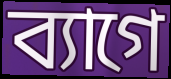
ব্যাগে